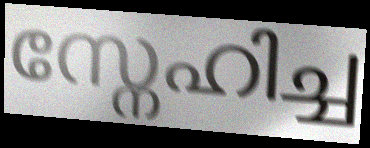
സ്നേഹിച്ച